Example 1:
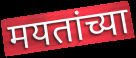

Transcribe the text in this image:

मयतांच्या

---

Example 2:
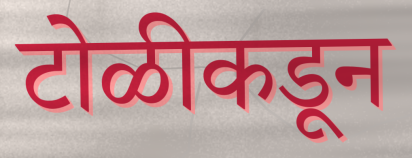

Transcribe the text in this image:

टोळीकडून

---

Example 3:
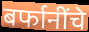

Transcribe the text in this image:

बर्फानींचे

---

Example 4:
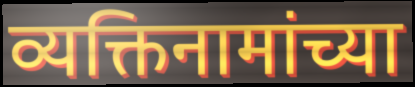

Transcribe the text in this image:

व्यक्तिनामांच्या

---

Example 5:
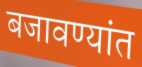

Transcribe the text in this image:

बजावण्यांत